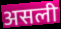
असली